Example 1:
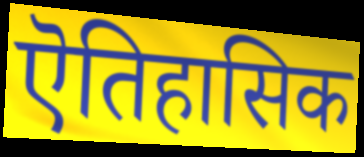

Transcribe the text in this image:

ऎतिहासिक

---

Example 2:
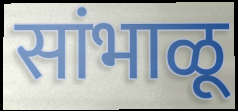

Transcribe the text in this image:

सांभाळू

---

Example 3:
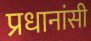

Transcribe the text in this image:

प्रधानांसी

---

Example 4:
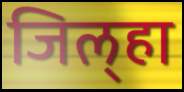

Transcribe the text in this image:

जिल्हा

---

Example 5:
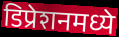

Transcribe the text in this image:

डिप्रेशनमध्ये